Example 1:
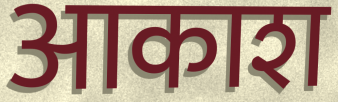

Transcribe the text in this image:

आकाश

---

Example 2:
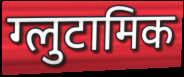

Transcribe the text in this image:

ग्लुटामिक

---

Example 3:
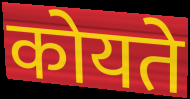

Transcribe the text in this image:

कोयते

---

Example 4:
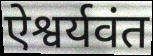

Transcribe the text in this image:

ऐश्वर्यवंत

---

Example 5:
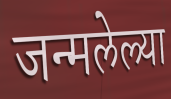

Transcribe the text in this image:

जन्मलेल्या